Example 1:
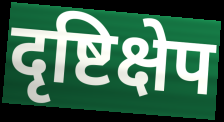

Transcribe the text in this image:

दृष्टिक्षेप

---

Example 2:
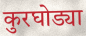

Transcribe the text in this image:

कुरघोड्या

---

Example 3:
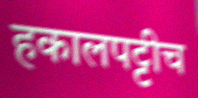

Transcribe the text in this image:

हकालपट्टीच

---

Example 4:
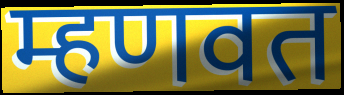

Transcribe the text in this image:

म्हणवत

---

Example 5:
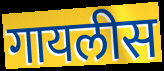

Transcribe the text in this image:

गायलीस